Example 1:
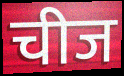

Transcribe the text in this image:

चीज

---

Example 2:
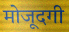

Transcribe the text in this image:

मोजूदगी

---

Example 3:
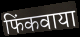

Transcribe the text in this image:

फिंकवाया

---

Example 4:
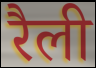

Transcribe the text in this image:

रैली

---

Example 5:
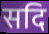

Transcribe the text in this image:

सदि